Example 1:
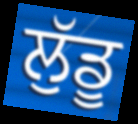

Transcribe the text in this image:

ਲੁੱਡੂ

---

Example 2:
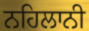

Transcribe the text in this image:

ਨਹਿਲਾਨੀ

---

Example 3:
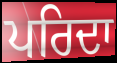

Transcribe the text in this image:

ਪਰਿਦਾ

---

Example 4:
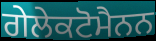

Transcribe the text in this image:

ਗੇਲੇਕਟੋਮੈਨਨ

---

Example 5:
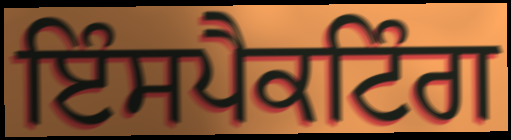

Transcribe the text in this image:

ਇੰਸਪੈਕਟਿੰਗ